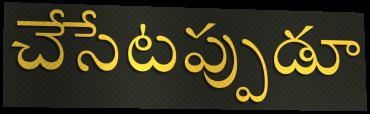
చేసేటప్పుడూ